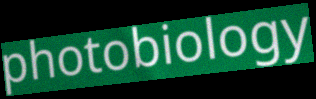
photobiology